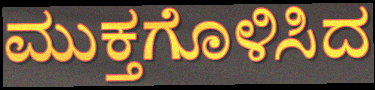
ಮುಕ್ತಗೊಳಿಸಿದ